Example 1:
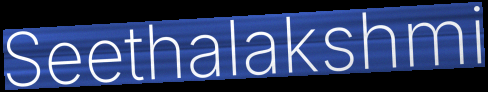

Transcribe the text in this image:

Seethalakshmi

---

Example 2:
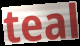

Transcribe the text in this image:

teal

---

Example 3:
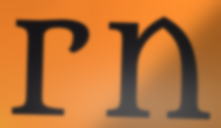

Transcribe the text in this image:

rn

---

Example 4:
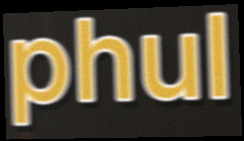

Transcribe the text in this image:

phul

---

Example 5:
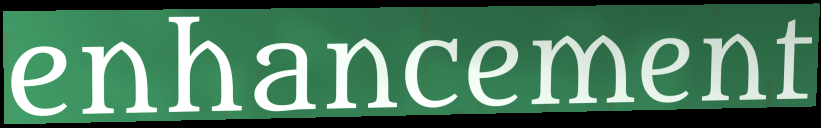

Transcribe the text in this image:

enhancement